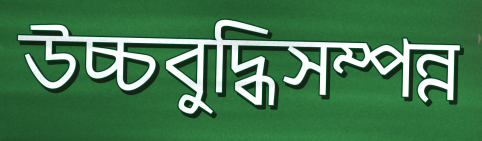
উচ্চবুদ্ধিসম্পন্ন